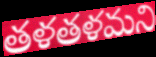
తళతళమని